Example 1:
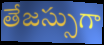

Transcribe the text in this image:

తేజస్సుగా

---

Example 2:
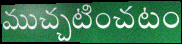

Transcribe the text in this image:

ముచ్చటించటం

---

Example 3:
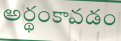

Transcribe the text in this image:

అర్థంకావడం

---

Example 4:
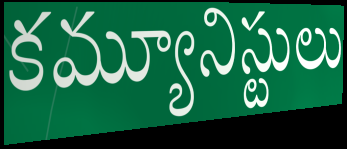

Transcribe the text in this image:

కమ్యూనిస్టులు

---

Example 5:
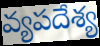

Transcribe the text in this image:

వ్యపదేశ్య